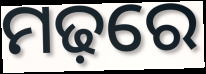
ମଢ଼ରେ